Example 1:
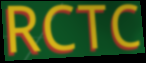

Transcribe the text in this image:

RCTC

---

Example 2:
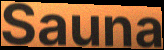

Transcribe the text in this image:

Sauna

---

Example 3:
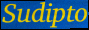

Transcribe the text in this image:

Sudipto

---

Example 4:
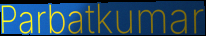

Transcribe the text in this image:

Parbatkumar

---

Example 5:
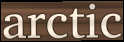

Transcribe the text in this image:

arctic